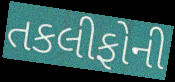
તકલીફોની